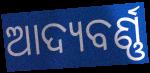
ଆଦ୍ୟବର୍ଣ୍ଣ